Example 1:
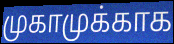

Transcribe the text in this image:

முகாமுக்காக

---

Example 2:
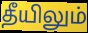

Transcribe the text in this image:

தீயிலும்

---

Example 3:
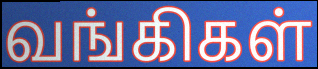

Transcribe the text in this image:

வங்கிகள்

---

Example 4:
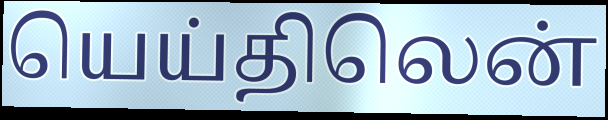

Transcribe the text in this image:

யெய்திலென்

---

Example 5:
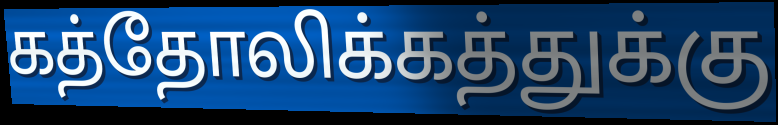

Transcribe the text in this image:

கத்தோலிக்கத்துக்கு